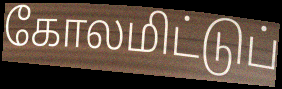
கோலமிட்டுப்